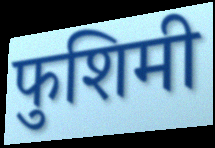
फुशिमी